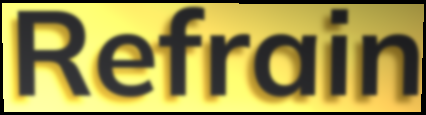
Refrain